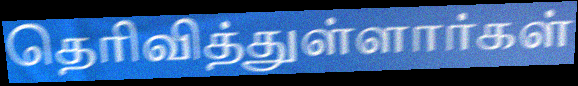
தெரிவித்துள்ளார்கள்